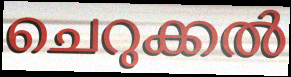
ചെറുക്കൽ